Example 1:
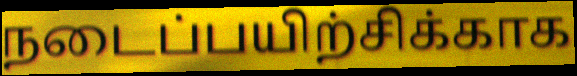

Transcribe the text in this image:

நடைப்பயிற்சிக்காக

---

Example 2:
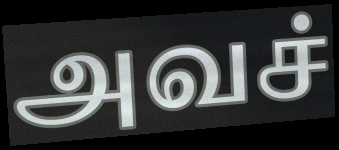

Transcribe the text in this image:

அவச்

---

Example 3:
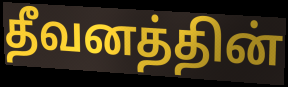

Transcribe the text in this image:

தீவனத்தின்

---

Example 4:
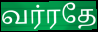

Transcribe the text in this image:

வர்ரதே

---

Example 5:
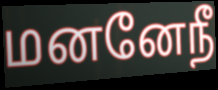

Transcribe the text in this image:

மனனேநீ